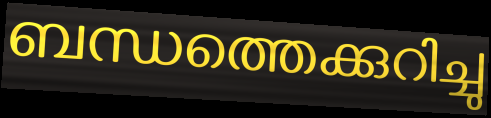
ബന്ധത്തെക്കുറിച്ചു